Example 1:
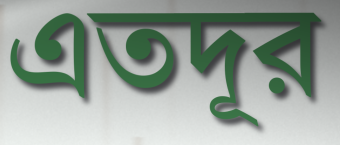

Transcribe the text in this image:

এতদূর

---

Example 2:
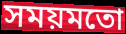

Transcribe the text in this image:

সময়মতো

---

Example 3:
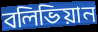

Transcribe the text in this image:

বলিভিয়ান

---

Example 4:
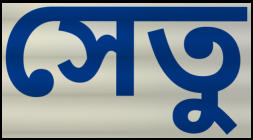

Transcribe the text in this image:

সেতু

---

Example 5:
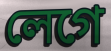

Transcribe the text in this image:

লেগে